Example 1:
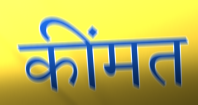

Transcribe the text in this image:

कींमत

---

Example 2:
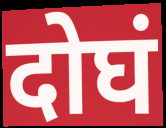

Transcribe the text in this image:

दोघं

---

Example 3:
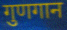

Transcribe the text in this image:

गुणगान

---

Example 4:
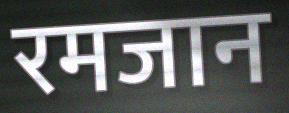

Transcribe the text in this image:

रमजान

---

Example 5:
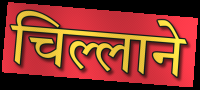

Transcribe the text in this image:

चिल्लाने